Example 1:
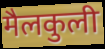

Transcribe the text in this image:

मैलकुली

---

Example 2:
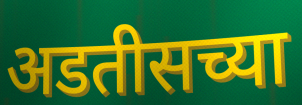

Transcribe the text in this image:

अडतीसच्या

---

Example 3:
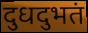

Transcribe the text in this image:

दुधदुभतं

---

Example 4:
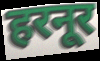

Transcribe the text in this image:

हरनूर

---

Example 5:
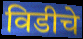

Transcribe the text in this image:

विडीचे